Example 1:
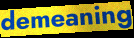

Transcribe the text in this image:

demeaning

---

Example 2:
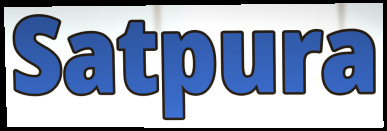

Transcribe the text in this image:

Satpura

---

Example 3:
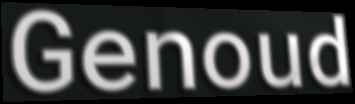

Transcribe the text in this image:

Genoud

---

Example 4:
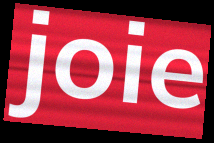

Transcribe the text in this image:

joie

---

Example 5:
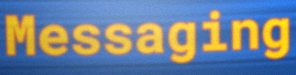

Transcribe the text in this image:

Messaging